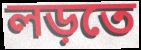
লড়তে